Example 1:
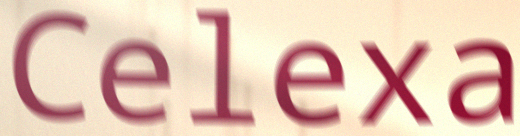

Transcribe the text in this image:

Celexa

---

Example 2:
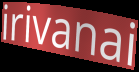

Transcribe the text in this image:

irivanai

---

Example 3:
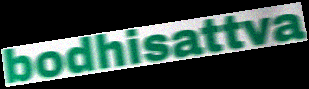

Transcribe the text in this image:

bodhisattva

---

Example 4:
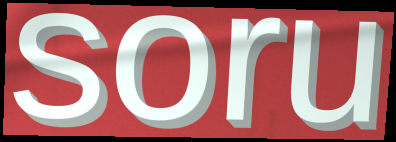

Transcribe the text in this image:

soru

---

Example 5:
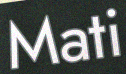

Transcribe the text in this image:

Mati